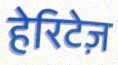
हेरिटेज़